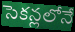
సెకన్లలోనే